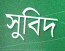
সুবিদ